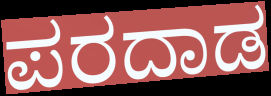
ಪರದಾಡ